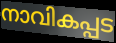
നാവികപ്പട